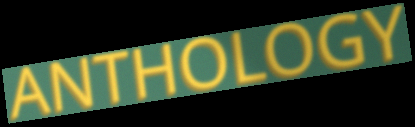
ANTHOLOGY